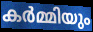
കർമ്മിയും